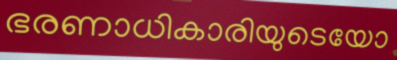
ഭരണാധികാരിയുടെയോ